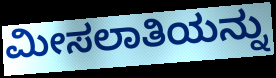
ಮೀಸಲಾತಿಯನ್ನು